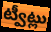
ట్వీట్లు